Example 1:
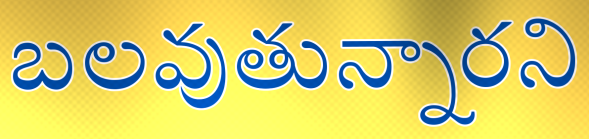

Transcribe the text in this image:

బలవుతున్నారని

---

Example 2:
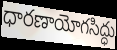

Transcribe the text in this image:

ధారణాయోగసిద్ధు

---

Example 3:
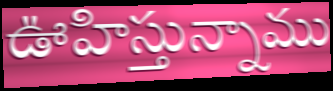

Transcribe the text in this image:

ఊహిస్తున్నాము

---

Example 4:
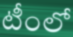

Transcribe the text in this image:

టీంలో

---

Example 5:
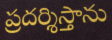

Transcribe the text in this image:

ప్రదర్శిస్తాను